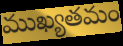
ముఖ్యతమం